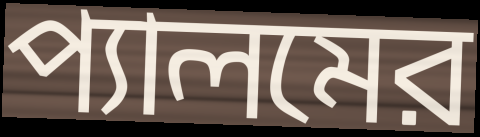
প্যালমের